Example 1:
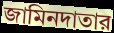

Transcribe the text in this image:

জামিনদাতার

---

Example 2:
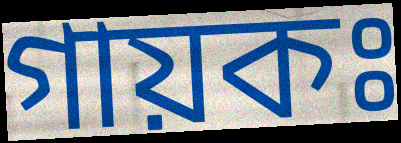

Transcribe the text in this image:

গায়কঃ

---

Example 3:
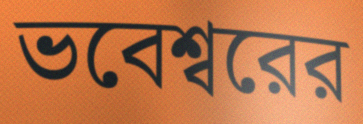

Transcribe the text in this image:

ভবেশ্বরের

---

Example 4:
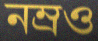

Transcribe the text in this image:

নম্রও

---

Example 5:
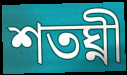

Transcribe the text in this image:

শতঘ্নী